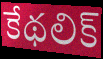
కేథలిక్